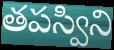
తపస్విని